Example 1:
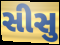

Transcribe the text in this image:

સીસુ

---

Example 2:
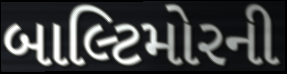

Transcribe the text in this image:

બાલ્ટિમોરની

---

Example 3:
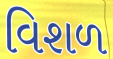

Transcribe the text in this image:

વિશળ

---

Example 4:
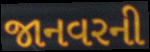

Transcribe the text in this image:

જાનવરની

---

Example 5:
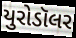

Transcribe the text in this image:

યુરોડૉલર